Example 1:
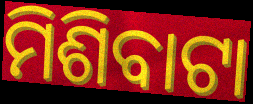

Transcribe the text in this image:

ମିଶିବାଟା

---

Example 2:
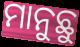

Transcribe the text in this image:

ମାନୁଛୁ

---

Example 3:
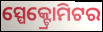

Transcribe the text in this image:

ସ୍ପେକ୍ଟ୍ରୋମିଟର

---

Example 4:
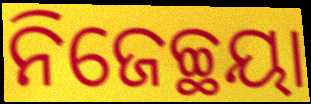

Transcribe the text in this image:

ନିଜେଚ୍ଛୟା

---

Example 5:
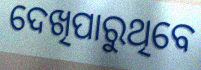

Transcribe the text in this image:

ଦେଖିପାରୁଥିବେ